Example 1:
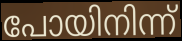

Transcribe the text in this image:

പോയിനിന്ന്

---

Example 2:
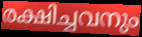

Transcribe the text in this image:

രക്ഷിച്ചവനും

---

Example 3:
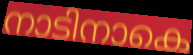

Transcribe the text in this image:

നാടിനാകെ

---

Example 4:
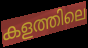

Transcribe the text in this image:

കളത്തിലെ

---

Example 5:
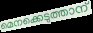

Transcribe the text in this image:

മെനക്കെടുത്താന്